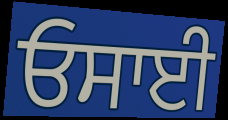
ਓਸਾਈ